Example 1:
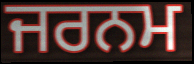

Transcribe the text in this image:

ਜਰਨਮ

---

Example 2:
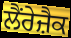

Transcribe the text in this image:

ਲੈਂਰੇਜ਼ੈਕ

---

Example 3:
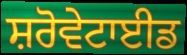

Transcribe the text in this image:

ਸ਼ਰੋਵੇਟਾਈਡ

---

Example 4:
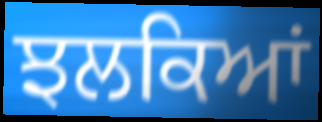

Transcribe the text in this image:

ਝਲਕਿਆਂ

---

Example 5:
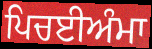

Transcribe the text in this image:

ਪਿਚਈਅੰਮਾ